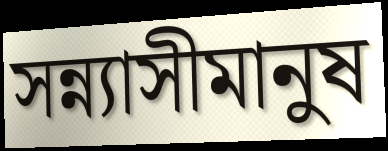
সন্ন্যাসীমানুষ